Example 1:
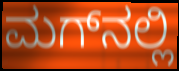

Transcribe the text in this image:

ಮಗ್‌ನಲ್ಲಿ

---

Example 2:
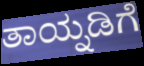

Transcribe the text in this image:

ತಾಯ್ನಡಿಗೆ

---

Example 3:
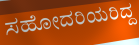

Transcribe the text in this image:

ಸಹೋದರಿಯರಿದ್ದ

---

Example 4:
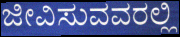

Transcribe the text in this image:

ಜೀವಿಸುವವರಲ್ಲಿ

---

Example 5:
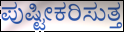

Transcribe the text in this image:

ಪುಷ್ಟೀಕರಿಸುತ್ತ